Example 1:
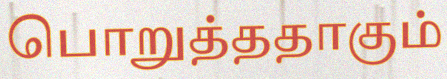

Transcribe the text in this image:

பொறுத்ததாகும்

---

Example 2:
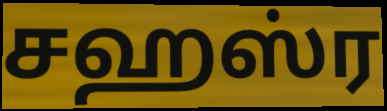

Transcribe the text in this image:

சஹஸ்ர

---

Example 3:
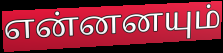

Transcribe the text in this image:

என்னனயும்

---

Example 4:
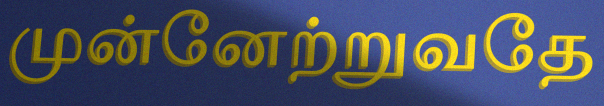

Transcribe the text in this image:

முன்னேற்றுவதே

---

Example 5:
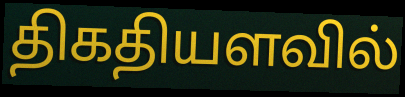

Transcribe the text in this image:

திகதியளவில்